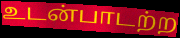
உடன்பாடற்ற